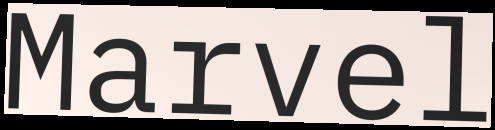
Marvel